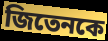
জিতেনকে